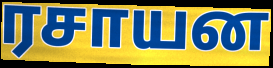
ரசாயன